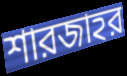
শারজাহর